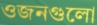
ওজনগুলো